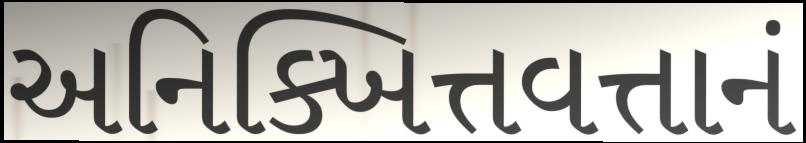
અનિક્ખિત્તવત્તાનં